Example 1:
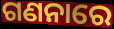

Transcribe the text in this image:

ଗଣନାରେ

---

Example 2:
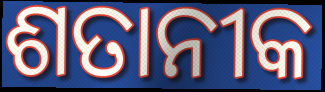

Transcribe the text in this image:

ଶତାନୀକ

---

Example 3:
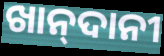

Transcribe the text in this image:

ଖାନ୍‍ଦାନୀ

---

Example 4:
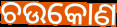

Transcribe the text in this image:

ଚଉକୋଣ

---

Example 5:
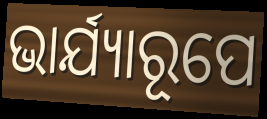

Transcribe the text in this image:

ଭାର୍ଯ୍ୟାରୂପେ